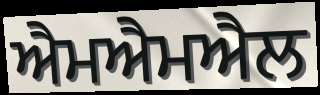
ਐਮਐਮਐਲ